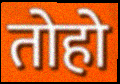
तोहो